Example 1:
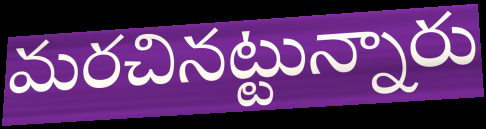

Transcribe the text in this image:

మరచినట్టున్నారు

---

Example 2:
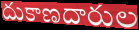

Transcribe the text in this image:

దుకాణదారుల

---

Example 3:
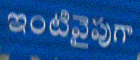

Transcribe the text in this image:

ఇంటివైపుగా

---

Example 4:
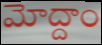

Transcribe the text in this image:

మోద్దాం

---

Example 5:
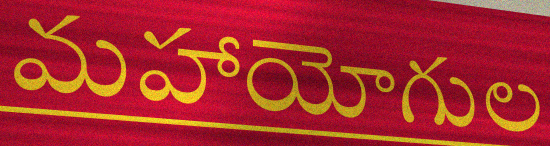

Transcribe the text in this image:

మహాయోగుల